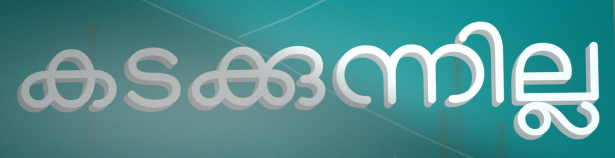
കടക്കുന്നില്ല